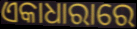
ଏକାଧାରାରେ